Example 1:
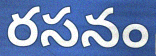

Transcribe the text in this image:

రసనం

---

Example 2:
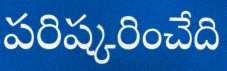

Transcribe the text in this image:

పరిష్కరించేది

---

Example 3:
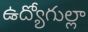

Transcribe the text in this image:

ఉద్యోగుల్లా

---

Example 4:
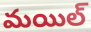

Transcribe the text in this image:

మయిల్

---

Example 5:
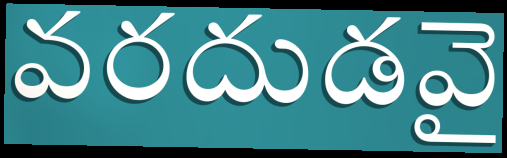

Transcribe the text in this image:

వరదుడవై